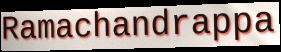
Ramachandrappa